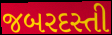
જબરદસ્તી